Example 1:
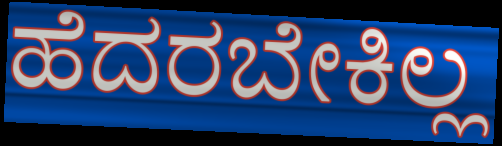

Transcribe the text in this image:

ಹೆದರಬೇಕಿಲ್ಲ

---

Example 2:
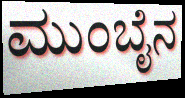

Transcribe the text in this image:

ಮುಂಬೈನ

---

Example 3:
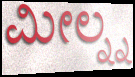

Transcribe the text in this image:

ಮೀಲ್ನ್ನ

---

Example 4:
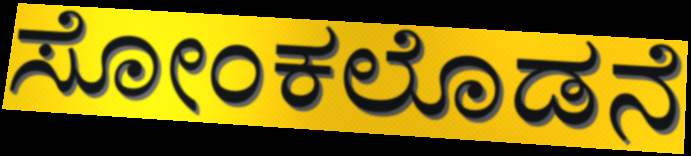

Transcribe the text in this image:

ಸೋಂಕಲೊಡನೆ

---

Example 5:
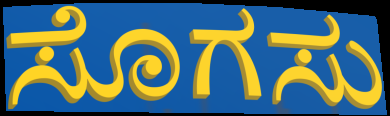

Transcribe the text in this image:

ಸೊಗಸು